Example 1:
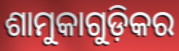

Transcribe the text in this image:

ଶାମୁକାଗୁଡ଼ିକର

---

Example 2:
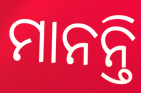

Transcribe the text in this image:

ମାନନ୍ତି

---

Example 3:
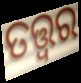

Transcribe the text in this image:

ତତ୍ତ୍ଵର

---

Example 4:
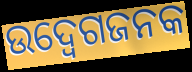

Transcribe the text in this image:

ଉଦ୍ବେଗଜନକ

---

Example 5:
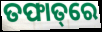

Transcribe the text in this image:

ତଫାତ୍‌ରେ